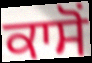
ਕਾਸੋਂ